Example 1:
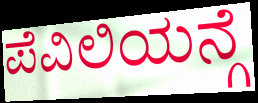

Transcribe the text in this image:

ಪೆವಿಲಿಯನ್ಗೆ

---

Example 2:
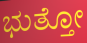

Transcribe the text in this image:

ಭುತ್ತೋ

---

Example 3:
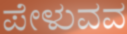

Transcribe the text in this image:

ಪೇಳುವವ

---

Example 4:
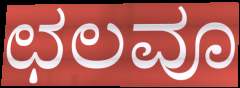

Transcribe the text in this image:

ಛಲವೂ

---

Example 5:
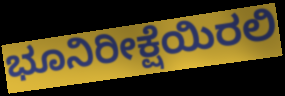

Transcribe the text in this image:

ಭೂನಿರೀಕ್ಷೆಯಿರಲಿ